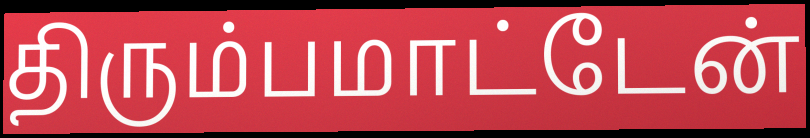
திரும்பமாட்டேன்